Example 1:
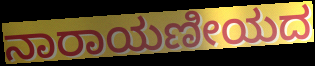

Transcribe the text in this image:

ನಾರಾಯಣೀಯದ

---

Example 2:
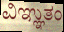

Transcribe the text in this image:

ವಿಞ್ಞುತಂ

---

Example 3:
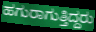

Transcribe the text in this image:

ಹಗುರಾಗುತ್ತಿದ್ದರು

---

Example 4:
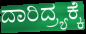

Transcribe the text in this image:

ದಾರಿದ್ರ್ಯಕ್ಕೆ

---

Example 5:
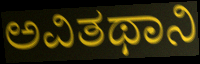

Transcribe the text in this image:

ಅವಿತಥಾನಿ